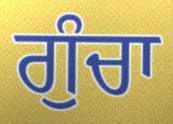
ਗੁੰਚਾ